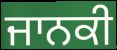
ਜਾਨਕੀ